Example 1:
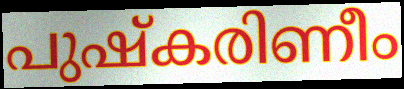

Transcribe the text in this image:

പുഷ്കരിണീം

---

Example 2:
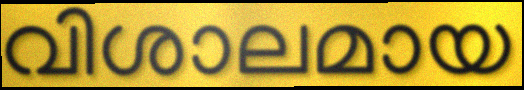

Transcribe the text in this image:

വിശാലമായ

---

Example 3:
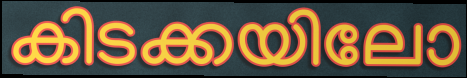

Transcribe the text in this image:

കിടക്കയിലോ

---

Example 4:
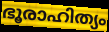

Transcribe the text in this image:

ഭൂരാഹിത്യം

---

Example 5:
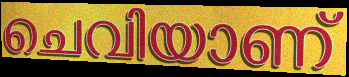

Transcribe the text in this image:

ചെവിയാണ്